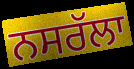
ਨਸਰੱਲਾ